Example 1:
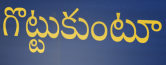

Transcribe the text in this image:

గొట్టుకుంటూ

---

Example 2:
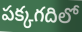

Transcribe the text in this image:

పక్కగదిలో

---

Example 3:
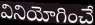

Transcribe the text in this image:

వినియోగించే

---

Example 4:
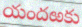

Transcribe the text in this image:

యందఱకు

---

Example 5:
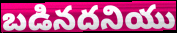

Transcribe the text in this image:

బడినదనియు